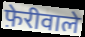
फ़ेरीवाले